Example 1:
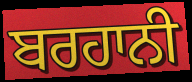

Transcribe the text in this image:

ਬਰਹਾਨੀ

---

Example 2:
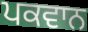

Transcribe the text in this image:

ਪਕਵਾਨ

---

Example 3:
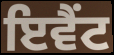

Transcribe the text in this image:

ਇਵੈਂਟ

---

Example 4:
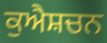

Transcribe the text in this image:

ਕੁਐਸ਼ਚਨ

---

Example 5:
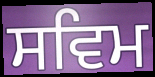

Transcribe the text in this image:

ਸਵਿਮ